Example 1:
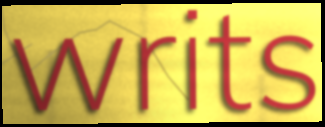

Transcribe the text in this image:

writs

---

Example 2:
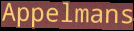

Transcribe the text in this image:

Appelmans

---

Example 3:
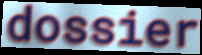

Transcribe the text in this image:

dossier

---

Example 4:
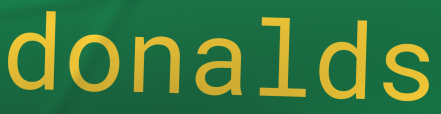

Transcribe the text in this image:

donalds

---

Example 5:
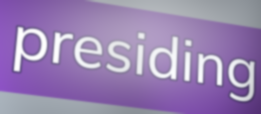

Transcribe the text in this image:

presiding